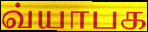
வ்யாபக